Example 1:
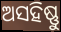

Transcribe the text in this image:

ଅସହିଷ୍ଣୁ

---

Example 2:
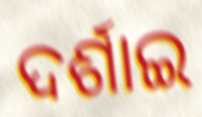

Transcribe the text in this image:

ଦର୍ଶାଇ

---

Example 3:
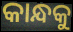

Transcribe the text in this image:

କାନ୍ଧକୁ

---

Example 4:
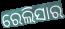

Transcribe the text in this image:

ରେଲିସାର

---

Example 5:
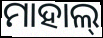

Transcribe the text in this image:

ମାହାଲ୍